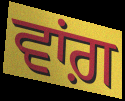
ਵਾਂਗ਼